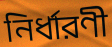
নির্ধারণী